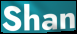
Shan